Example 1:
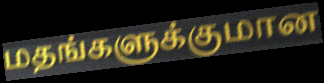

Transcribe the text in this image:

மதங்களுக்குமான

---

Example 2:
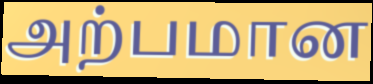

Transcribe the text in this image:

அற்பமான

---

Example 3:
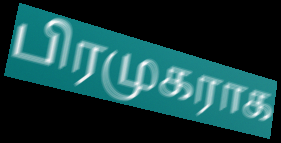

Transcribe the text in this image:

பிரமுகராக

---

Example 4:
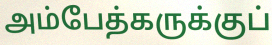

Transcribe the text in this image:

அம்பேத்கருக்குப்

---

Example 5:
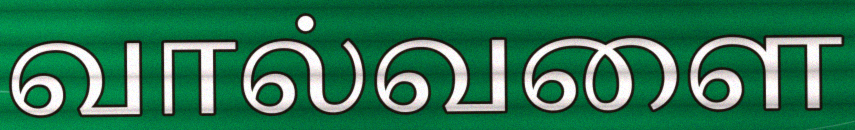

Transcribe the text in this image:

வால்வளை